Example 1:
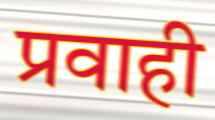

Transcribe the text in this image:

प्रवाही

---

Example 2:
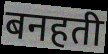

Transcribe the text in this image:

बनहती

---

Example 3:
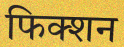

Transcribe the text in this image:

फिक्‍शन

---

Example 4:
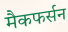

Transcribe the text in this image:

मैकफर्सन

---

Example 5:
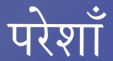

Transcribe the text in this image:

परेशाँ